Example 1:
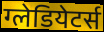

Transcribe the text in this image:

ग्लेडियेटर्स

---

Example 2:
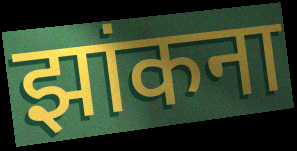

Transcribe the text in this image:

झांकना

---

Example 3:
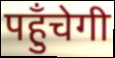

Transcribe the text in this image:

पहुँचेगी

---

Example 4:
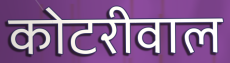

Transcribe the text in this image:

कोटरीवाल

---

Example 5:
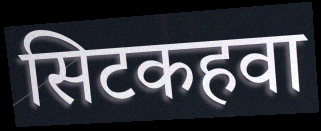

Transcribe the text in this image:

सिटकहवा